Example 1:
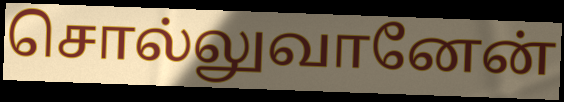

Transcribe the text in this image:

சொல்லுவானேன்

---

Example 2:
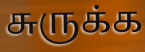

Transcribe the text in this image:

சுருக்க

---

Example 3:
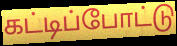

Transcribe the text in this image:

கட்டிப்போட்டு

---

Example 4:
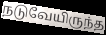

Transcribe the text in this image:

நடுவேயிருந்த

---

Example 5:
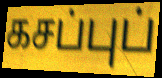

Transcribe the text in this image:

கசப்புப்